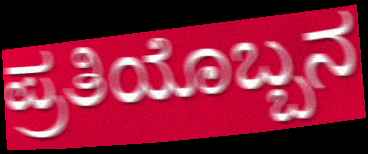
ಪ್ರತಿಯೊಬ್ಬನ